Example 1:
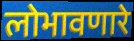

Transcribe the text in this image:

लोभावणारे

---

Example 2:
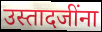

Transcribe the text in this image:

उस्तादजींना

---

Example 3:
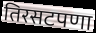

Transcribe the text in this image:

तिरसटपणा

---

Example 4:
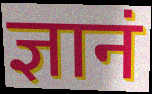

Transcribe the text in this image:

ज्ञानं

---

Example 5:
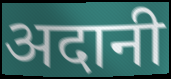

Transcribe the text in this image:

अदानी